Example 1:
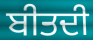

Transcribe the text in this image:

ਬੀਤਦੀ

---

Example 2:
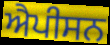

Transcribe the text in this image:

ਐਪੀਸਨ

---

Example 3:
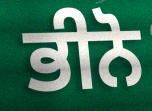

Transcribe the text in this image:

ਭੀਨੋ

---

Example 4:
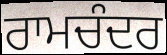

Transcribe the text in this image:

ਰਾਮਚੰਦਰ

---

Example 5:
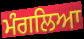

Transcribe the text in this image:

ਮੰਗਲਿਆ